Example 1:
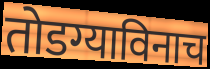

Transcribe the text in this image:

तोडग्याविनाच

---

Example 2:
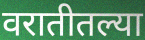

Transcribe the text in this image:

वरातीतल्या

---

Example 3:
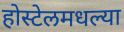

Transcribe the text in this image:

होस्टेलमधल्या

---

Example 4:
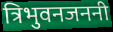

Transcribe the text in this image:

त्रिभुवनजननी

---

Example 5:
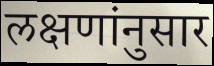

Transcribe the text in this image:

लक्षणांनुसार